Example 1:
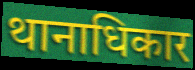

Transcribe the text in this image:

थानाधिकार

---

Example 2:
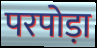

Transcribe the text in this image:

परपोड़ा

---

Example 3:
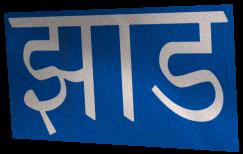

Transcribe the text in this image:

झाड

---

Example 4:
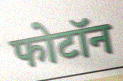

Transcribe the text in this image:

फोटॉन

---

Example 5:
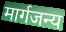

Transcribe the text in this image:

मार्गजन्य